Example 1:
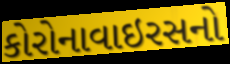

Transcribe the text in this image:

કોરોનાવાઇરસનો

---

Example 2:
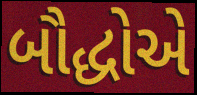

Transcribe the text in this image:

બૌદ્ધોએ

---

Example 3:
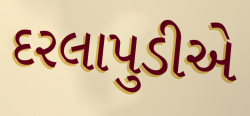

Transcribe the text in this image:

દરલાપુડીએ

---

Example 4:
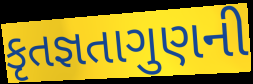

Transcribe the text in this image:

કૃતજ્ઞતાગુણની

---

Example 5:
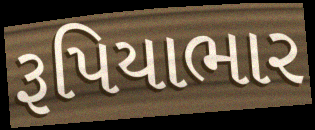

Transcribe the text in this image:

રૂપિયાભાર